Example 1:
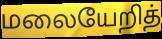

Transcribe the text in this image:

மலையேறித்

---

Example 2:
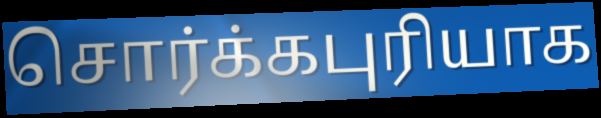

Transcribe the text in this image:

சொர்க்கபுரியாக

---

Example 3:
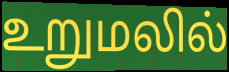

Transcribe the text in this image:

உறுமலில்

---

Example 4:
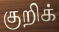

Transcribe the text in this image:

குறிக்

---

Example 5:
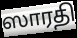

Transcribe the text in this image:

ஸாரதி